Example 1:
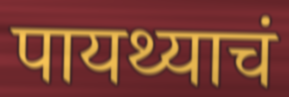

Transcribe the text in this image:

पायथ्याचं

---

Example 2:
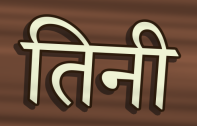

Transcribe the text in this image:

तिनी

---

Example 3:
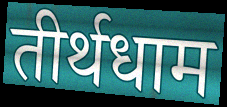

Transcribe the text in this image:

तीर्थधाम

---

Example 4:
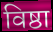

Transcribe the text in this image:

विष्ठा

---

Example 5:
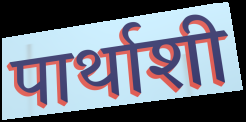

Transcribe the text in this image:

पार्थाशी